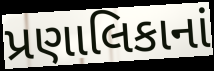
પ્રણાલિકાનાં